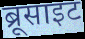
ब्रूसाइट